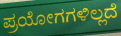
ಪ್ರಯೋಗಗಳಿಲ್ಲದೆ